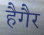
हैगैर